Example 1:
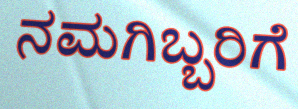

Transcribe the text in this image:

ನಮಗಿಬ್ಬರಿಗೆ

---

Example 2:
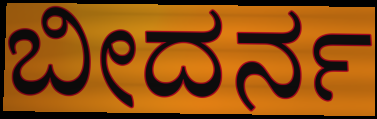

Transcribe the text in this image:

ಬೀದರ್ನ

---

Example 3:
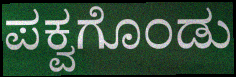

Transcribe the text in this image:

ಪಕ್ವಗೊಂಡು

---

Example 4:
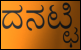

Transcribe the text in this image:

ದನಟ್ಟಿ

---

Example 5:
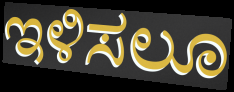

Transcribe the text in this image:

ಇಳಿಸಲೂ